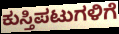
ಕುಸ್ತಿಪಟುಗಳಿಗೆ